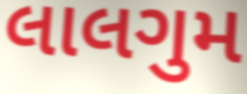
લાલગુમ